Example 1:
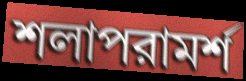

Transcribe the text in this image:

শলাপরামর্শ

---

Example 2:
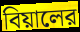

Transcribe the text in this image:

বিয়ালের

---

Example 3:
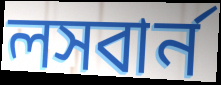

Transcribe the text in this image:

লসবার্ন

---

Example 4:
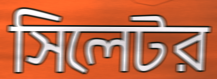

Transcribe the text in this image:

সিলেটর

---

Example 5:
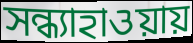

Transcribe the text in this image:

সন্ধ্যাহাওয়ায়